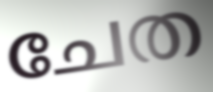
ചേത